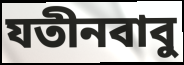
যতীনবাবু